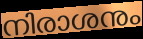
നിരാശനും